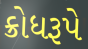
ક્રોધરૂપે